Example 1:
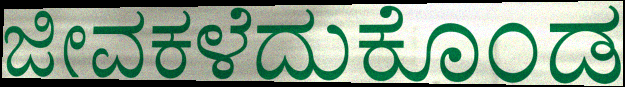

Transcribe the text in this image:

ಜೀವಕಳೆದುಕೊಂಡ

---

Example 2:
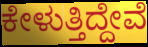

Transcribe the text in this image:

ಕೇಳುತ್ತಿದ್ದೇವೆ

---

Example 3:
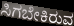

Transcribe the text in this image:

ಸಿಗಬೇಕಿರುವ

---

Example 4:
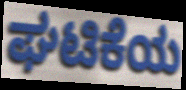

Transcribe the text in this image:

ಘಟಿಕೆಯ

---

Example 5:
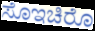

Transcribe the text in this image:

ಸೊಇಚಿರೊ